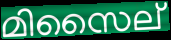
മിസൈല്